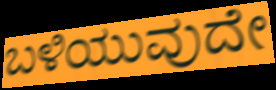
ಬಳಿಯುವುದೇ